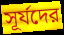
সূর্যদের